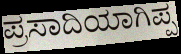
ಪ್ರಸಾದಿಯಾಗಿಪ್ಪ